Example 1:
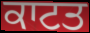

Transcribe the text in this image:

ਕਾਟਤ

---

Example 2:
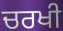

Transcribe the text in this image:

ਚਰਖੀ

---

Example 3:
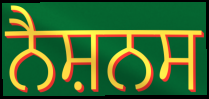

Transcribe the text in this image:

ਨੈਸ਼ਨਸ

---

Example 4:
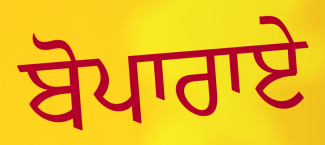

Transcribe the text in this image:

ਬੋਪਾਰਾਏ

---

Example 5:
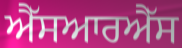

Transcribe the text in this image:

ਐੱਸਆਰਐੱਸ